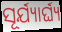
ସୂର୍ଯ୍ୟାର୍ଘ୍ୟ